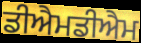
ਡੀਐਮਡੀਐਮ